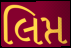
લિપ્ત